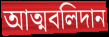
আত্মবলিদান